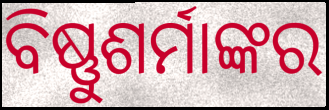
ବିଷ୍ଣୁଶର୍ମାଙ୍କର